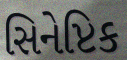
સિનેપ્ટિક